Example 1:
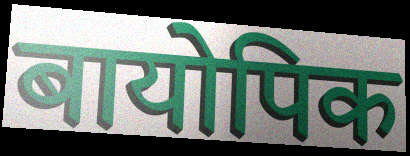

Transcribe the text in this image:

बायोपिक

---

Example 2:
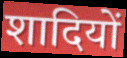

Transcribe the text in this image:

शादियों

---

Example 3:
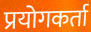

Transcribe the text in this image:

प्रयोगकर्ता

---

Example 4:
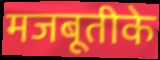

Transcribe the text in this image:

मजबूतीके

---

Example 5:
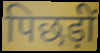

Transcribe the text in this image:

पिछड़ीं